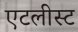
एटलीस्ट